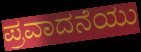
ಪ್ರವಾದನೆಯು